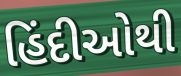
હિંદીઓથી